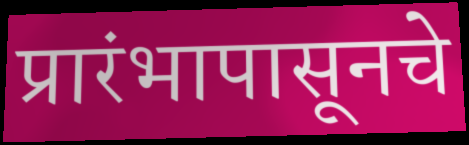
प्रारंभापासूनचे